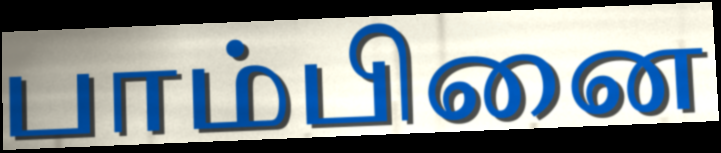
பாம்பினை